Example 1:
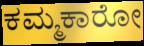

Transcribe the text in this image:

ಕಮ್ಮಕಾರೋ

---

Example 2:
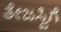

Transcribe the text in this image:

ತೇಜಸ್ವಿಗೆ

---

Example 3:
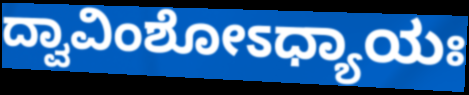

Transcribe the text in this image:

ದ್ವಾವಿಂಶೋಽಧ್ಯಾಯಃ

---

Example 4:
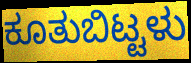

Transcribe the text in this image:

ಕೂತುಬಿಟ್ಟಳು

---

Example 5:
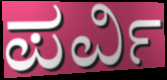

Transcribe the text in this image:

ಪರ್ವಿ